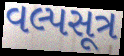
વલ્પસૂત્ર